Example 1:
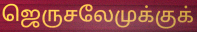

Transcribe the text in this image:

ஜெருசலேமுக்குக்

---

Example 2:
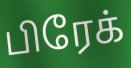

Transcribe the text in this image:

பிரேக்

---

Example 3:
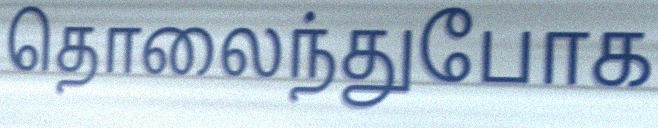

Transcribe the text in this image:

தொலைந்துபோக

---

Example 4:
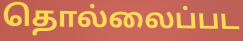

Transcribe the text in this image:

தொல்லைப்பட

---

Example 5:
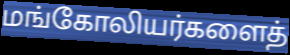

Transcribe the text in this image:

மங்கோலியர்களைத்